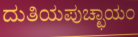
ದುತಿಯಪುಚ್ಛಾಯಂ